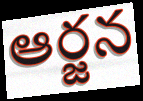
ఆర్జన